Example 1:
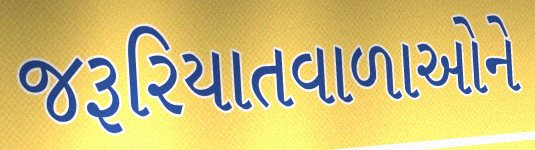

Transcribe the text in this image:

જરૂરિયાતવાળાઓને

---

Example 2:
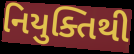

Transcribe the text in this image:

નિયુક્તિથી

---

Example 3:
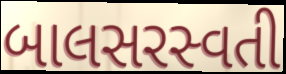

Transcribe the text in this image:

બાલસરસ્વતી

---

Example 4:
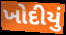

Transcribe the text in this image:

ખોદીયું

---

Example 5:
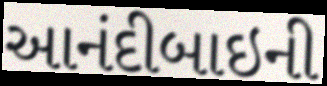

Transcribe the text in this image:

આનંદીબાઇની